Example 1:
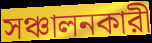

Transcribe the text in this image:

সঞ্চালনকারী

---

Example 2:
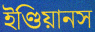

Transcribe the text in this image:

ইণ্ডিয়ানস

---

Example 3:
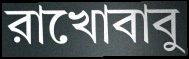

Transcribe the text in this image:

রাখোবাবু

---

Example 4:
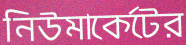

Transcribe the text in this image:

নিউমার্কেটের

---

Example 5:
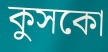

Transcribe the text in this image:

কুসকো